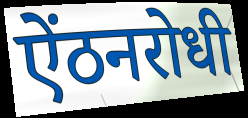
ऐंठनरोधी